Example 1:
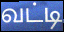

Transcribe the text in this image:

வட்டி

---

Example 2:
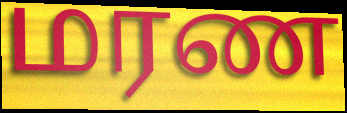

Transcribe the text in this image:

மரண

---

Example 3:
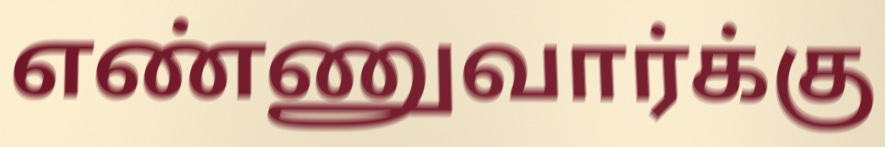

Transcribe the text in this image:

எண்ணுவார்க்கு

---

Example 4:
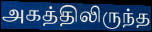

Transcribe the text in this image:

அகத்திலிருந்த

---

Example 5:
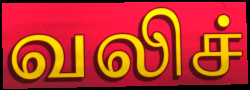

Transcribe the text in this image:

வலிச்